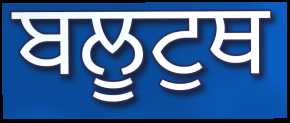
ਬਲੂਟੁਥ